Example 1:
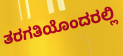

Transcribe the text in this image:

ತರಗತಿಯೊಂದರಲ್ಲಿ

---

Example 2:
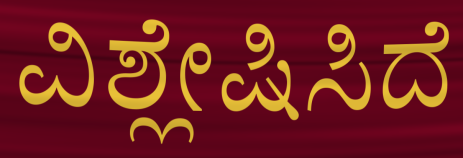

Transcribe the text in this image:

ವಿಶ್ಲೇಷಿಸಿದೆ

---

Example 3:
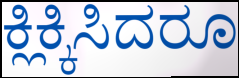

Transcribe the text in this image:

ಕ್ಲಿಕ್ಕಿಸಿದರೂ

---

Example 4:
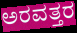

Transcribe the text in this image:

ಅರವತ್ತರ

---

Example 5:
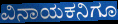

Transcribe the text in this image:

ವಿನಾಯಕನಿಗೂ